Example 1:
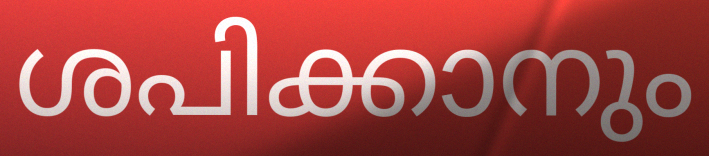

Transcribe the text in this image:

ശപിക്കാനും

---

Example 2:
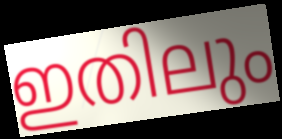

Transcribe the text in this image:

ഇതിലും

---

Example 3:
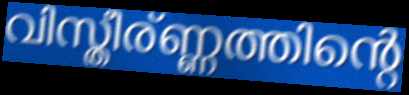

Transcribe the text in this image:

വിസ്തീര്ണ്ണത്തിന്റെ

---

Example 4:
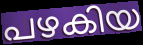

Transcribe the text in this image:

പഴകിയ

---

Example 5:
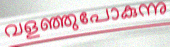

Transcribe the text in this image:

വളഞ്ഞുപോകുന്നു